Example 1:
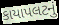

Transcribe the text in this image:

કાયાપલટનું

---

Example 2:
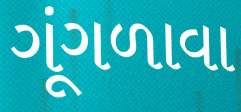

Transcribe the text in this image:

ગૂંગળાવા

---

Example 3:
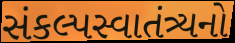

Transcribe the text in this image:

સંકલ્પસ્વાતંત્ર્યનો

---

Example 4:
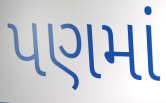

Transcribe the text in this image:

પણમાં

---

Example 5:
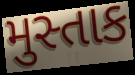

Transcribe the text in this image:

મુસ્તાક